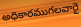
అధికారముగలవారై